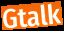
Gtalk